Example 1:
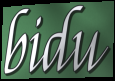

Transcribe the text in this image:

bidu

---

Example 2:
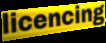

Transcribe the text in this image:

licencing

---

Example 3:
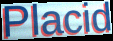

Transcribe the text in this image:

Placid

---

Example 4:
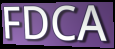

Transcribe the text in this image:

FDCA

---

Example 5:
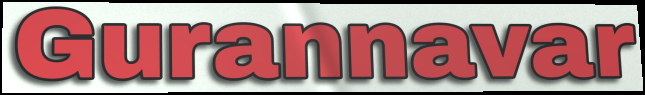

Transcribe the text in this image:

Gurannavar